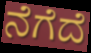
ನೆಗೆದೆ